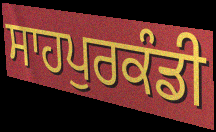
ਸਾਹਪੁਰਕੰਡੀ